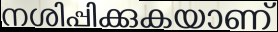
നശിപ്പിക്കുകയാണ്